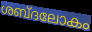
ശബ്ദലോകം